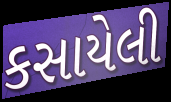
કસાયેલી